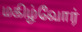
மகிழ்வோர்